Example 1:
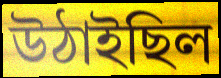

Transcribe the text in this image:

উঠাইছিল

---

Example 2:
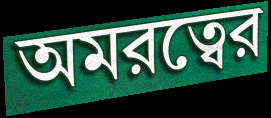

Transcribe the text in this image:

অমরত্বের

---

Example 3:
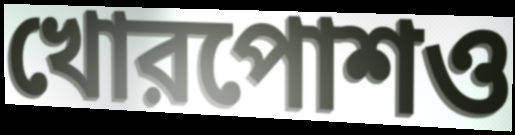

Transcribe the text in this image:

খোরপোশও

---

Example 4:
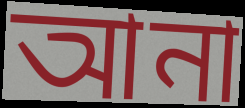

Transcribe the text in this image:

আনা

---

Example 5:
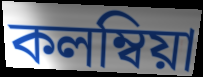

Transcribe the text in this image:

কলম্বিয়া